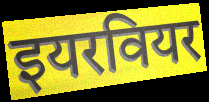
इयरवियर